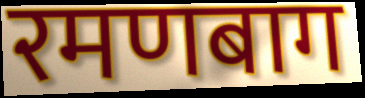
रमणबाग